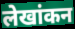
लेखांकन